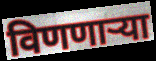
विणणाऱ्या